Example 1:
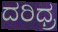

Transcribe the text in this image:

ದರಿಧ್ರ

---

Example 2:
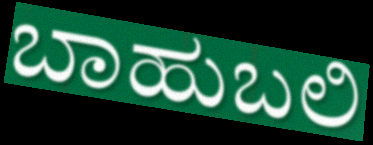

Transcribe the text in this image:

ಬಾಹುಬಲಿ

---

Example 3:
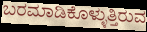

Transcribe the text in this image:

ಬರಮಾಡಿಕೊಳ್ಳುತ್ತಿರುವ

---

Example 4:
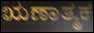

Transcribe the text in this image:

ಋಣಾತ್ಮಕ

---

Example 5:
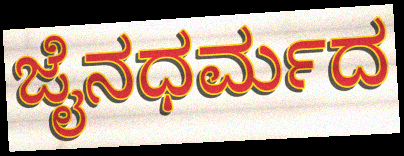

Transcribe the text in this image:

ಜೈನಧರ್ಮದ